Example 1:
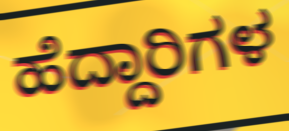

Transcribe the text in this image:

ಹೆದ್ದಾರಿಗಳ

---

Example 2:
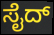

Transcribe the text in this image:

ಸೈದ್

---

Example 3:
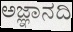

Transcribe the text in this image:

ಅಜ್ಞಾನದಿ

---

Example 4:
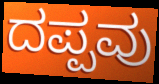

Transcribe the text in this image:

ದಪ್ಪವು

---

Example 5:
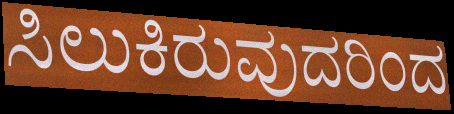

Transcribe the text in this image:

ಸಿಲುಕಿರುವುದರಿಂದ